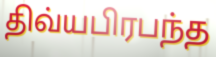
திவ்யபிரபந்த